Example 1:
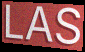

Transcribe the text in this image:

LAS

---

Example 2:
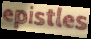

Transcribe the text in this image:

epistles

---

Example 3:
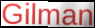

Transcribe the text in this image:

Gilman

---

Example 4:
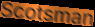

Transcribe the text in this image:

Scotsman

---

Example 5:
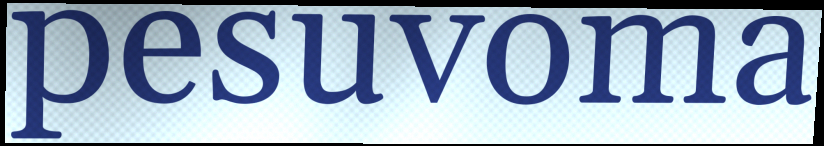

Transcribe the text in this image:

pesuvoma